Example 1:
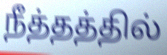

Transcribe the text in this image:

நீத்தத்தில்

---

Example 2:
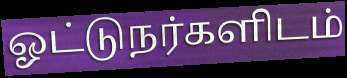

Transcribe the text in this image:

ஓட்டுநர்களிடம்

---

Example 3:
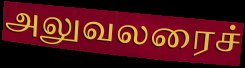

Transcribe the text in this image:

அலுவலரைச்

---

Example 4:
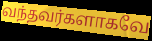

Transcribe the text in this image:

வந்தவர்களாகவே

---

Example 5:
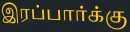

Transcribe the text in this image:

இரப்பார்க்கு